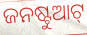
ଜନଷ୍ଟୁଆଟ୍